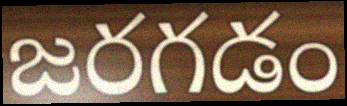
జరగడం